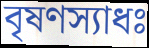
বৃষণস্যাধঃ